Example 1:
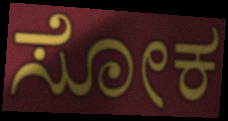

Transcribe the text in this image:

ಸೋಕ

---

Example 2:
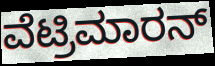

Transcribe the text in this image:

ವೆಟ್ರಿಮಾರನ್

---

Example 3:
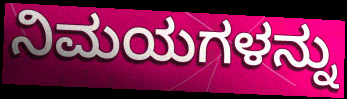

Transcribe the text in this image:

ನಿಮಯಗಳನ್ನು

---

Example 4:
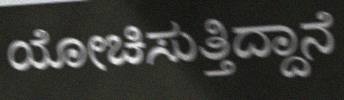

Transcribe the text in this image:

ಯೋಚಿಸುತ್ತಿದ್ದಾನೆ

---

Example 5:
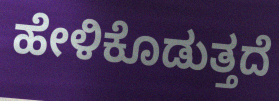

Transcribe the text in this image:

ಹೇಳಿಕೊಡುತ್ತದೆ